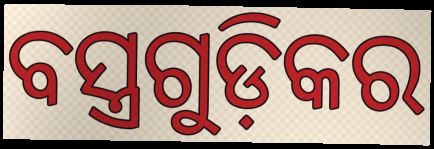
ବସ୍ତ୍ରଗୁଡ଼ିକର